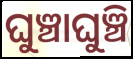
ଘୁଞ୍ଚାଘୁଞ୍ଚି